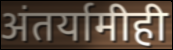
अंतर्यामीही